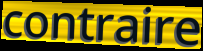
contraire